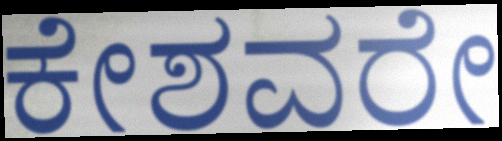
ಕೇಶವರೇ